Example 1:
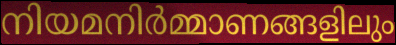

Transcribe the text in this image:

നിയമനിർമ്മാണങ്ങളിലും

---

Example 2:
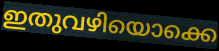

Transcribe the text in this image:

ഇതുവഴിയൊക്കെ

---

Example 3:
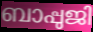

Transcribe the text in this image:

ബാപ്പുജി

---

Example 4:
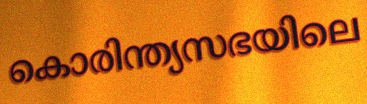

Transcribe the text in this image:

കൊരിന്ത്യസഭയിലെ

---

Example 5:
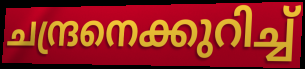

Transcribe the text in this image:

ചന്ദ്രനെക്കുറിച്ച്